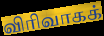
விரிவாகக்